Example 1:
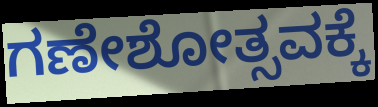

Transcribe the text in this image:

ಗಣೇಶೋತ್ಸವಕ್ಕೆ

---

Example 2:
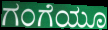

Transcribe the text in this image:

ಗಂಗೆಯೂ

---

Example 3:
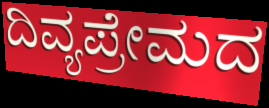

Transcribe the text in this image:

ದಿವ್ಯಪ್ರೇಮದ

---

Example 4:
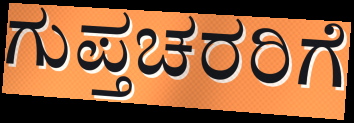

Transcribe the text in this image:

ಗುಪ್ತಚರರಿಗೆ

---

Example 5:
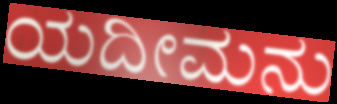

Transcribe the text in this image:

ಯದೀಮನು